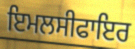
ਇਮਲਸੀਫਾਇਰ